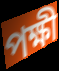
পক্ষী